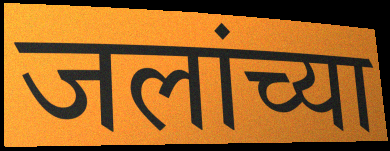
जलांच्या